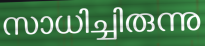
സാധിച്ചിരുന്നു